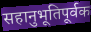
सहानुभूतिपूर्वक